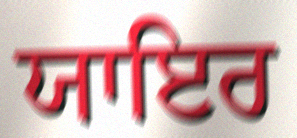
ਯਾਇਰ